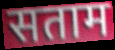
सताम